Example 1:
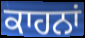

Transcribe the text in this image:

ਕਾਹਨਾਂ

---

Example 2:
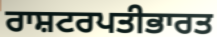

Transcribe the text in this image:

ਰਾਸ਼ਟਰਪਤੀਭਾਰਤ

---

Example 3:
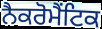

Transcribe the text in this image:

ਨੈਕਰੋਮੈਂਟਿਕ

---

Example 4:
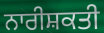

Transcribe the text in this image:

ਨਾਰੀਸ਼ਕਤੀ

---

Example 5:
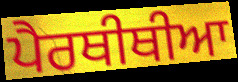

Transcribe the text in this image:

ਪੈਰਥੀਥੀਆ